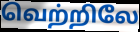
வெற்றிலே